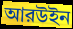
আরউইন